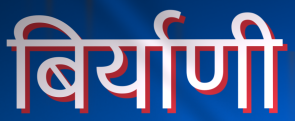
बिर्याणी